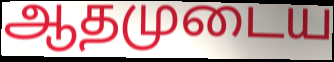
ஆதமுடைய